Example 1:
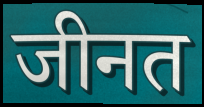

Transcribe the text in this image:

जीनत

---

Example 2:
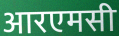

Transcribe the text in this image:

आरएमसी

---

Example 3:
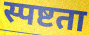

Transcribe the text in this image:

स्पष्टता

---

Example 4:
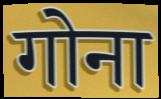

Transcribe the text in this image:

गोना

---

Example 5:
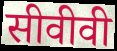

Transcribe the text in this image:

सीवीवी